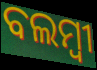
ବଲମ୍ୱୀ